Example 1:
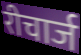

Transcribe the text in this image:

रीचार्ज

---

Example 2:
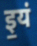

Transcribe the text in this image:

इ॒यं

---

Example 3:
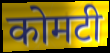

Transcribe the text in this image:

कोमटी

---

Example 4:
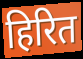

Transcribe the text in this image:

हिरित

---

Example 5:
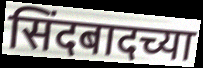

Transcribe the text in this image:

सिंदबादच्या